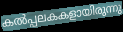
കൽപ്പലകകളായിരുന്നു